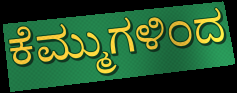
ಕೆಮ್ಮುಗಳಿಂದ